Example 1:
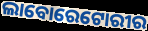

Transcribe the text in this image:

ଲାବୋରେଟୋରୀର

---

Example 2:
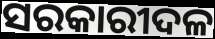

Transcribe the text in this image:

ସରକାରୀଦଳ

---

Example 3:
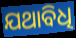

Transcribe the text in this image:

ଯଥାବିଧି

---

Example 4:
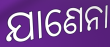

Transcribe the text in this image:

ଯାଣେନା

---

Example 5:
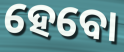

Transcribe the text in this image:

ହେବୋ